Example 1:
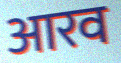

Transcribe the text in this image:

आरव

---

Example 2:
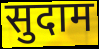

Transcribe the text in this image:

सुदाम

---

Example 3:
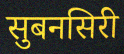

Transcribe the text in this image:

सुबनसिरी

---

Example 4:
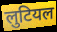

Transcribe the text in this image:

लुटियल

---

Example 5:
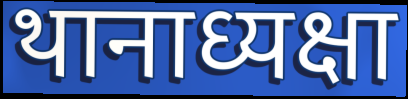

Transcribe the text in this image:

थानाध्यक्षा